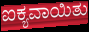
ಐಕ್ಯವಾಯಿತು